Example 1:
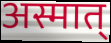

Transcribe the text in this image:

अस्मात्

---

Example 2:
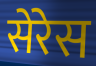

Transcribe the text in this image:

सेरेस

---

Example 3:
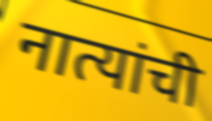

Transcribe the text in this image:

नात्यांची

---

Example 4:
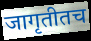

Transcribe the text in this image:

जागृतीतच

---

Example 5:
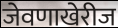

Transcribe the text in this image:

जेवणाखेरीज